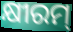
କ୍ଷୀରମ୍